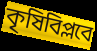
কৃষিবিপ্লবে